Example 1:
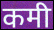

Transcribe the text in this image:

कमी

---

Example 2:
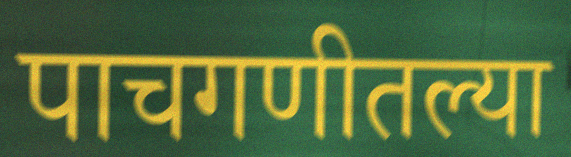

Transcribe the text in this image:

पाचगणीतल्या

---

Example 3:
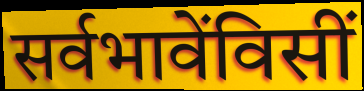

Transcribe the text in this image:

सर्वभावेंविसीं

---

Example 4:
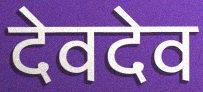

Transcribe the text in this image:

देवदेव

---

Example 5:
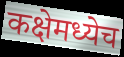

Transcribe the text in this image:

कक्षेमध्येच